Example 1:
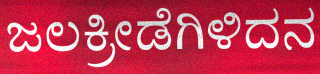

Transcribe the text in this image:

ಜಲಕ್ರೀಡೆಗಿಳಿದನ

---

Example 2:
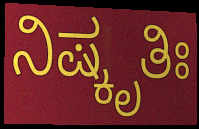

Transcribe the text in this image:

ನಿಷ್ಕೃತಿಃ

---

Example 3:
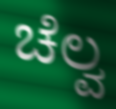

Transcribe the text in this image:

ಚೆಲ್ವ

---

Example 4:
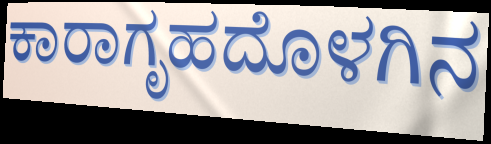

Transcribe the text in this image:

ಕಾರಾಗೃಹದೊಳಗಿನ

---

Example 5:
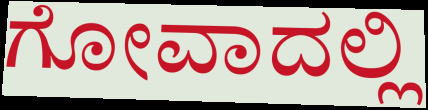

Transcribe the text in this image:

ಗೋವಾದಲ್ಲಿ